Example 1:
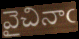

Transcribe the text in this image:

వైచినాఁ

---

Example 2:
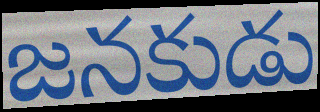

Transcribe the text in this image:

జనకుడు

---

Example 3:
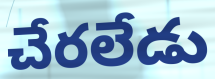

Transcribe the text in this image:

చేరలేడు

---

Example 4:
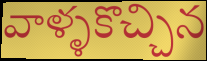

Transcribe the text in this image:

వాళ్ళకొచ్చిన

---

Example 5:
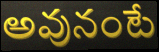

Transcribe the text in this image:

అవునంటే